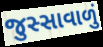
જુસ્સાવાળું